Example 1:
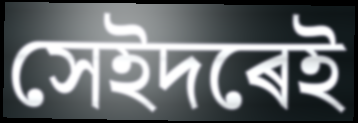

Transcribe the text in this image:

সেইদৰেই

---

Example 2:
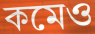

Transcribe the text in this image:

কমেও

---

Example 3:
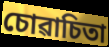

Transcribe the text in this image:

চোৱাচিতা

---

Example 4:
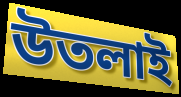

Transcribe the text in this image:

উতলাই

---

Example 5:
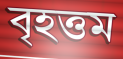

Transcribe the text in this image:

বৃহত্তম